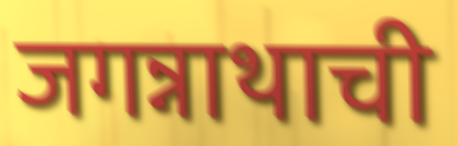
जगन्नाथाची